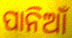
ପାନିଆଁ